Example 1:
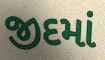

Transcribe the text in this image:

જીદમાં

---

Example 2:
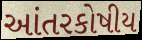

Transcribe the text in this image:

આંતરકોષીય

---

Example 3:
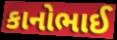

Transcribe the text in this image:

કાનોભાઈ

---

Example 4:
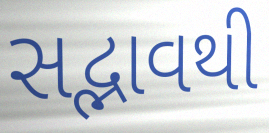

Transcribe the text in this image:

સદ્ભાવથી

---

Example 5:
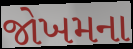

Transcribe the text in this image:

જોખમના